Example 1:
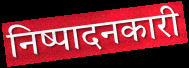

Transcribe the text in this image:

निष्पादनकारी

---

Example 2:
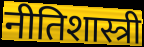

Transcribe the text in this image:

नीतिशास्त्री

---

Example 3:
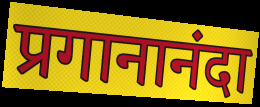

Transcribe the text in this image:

प्रगानानंदा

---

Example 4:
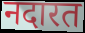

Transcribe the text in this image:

नदारत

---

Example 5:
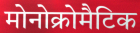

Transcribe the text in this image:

मोनोक्रोमैटिक